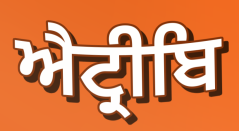
ਐਟ੍ਰੀਬਿ